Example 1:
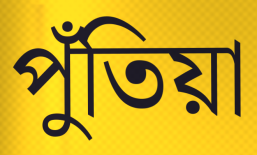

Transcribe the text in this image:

পুঁতিয়া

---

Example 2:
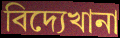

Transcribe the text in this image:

বিদ্যেখানা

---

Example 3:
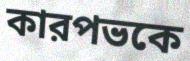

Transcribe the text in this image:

কারপভকে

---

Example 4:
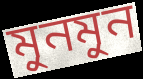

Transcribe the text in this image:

মুনমুন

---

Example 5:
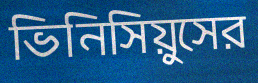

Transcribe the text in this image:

ভিনিসিয়ুসের